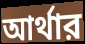
আর্থার